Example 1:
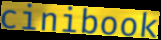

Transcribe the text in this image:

cinibook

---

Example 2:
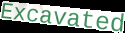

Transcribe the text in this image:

Excavated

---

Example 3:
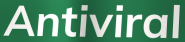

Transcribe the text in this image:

Antiviral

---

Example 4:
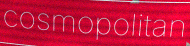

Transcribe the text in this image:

cosmopolitan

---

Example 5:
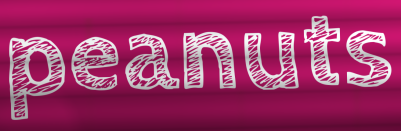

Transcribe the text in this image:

peanuts